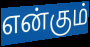
என்கும்